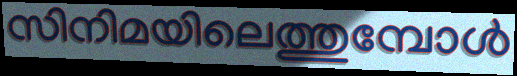
സിനിമയിലെത്തുമ്പോൾ